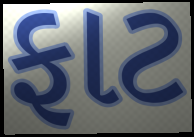
ફાટ